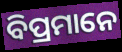
ବିପ୍ରମାନେ